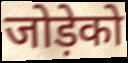
जोड़ेको